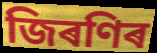
জিৰণিৰ